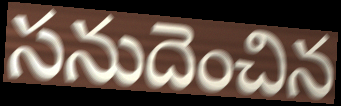
సనుదెంచిన